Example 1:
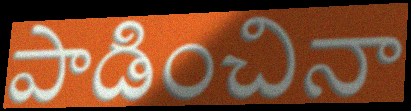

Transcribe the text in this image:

పాడించినా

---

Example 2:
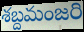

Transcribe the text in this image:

శబ్దమంజరి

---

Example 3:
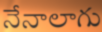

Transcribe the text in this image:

నేనాలాగు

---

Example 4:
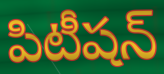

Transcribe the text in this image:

పిటీషన్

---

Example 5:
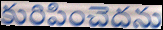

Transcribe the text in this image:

కురిపించెదను